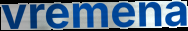
vremena